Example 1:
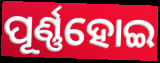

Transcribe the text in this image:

ପୂର୍ଣ୍ଣହୋଇ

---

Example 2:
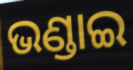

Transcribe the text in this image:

ଭଣ୍ଡାଇ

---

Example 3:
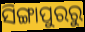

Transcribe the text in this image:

ସିଙ୍ଗାପୁରରୁ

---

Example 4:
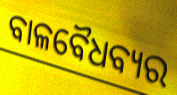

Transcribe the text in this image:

ବାଳବୈଧବ୍ୟର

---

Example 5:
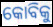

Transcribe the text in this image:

କୋବିକୁ